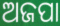
ଅଜପା